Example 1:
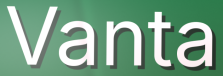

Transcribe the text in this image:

Vanta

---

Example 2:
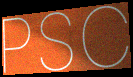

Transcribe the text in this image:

PSC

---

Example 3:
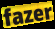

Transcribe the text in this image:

fazer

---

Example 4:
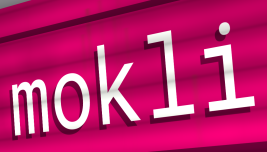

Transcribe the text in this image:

mokli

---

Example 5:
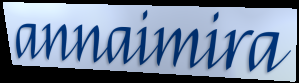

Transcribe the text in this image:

annaimira